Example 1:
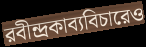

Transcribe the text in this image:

রবীন্দ্রকাব্যবিচারেও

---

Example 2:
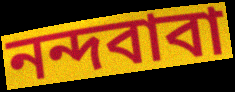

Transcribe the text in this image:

নন্দবাবা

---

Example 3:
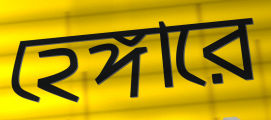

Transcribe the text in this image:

হেঙ্গারে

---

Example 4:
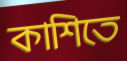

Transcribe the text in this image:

কাশিতে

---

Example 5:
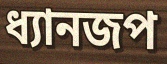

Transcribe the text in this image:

ধ্যানজপ